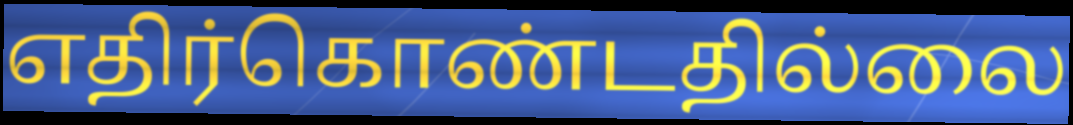
எதிர்கொண்டதில்லை